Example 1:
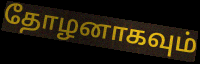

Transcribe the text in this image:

தோழனாகவும்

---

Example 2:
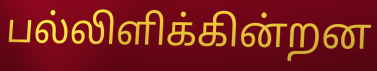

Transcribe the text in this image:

பல்லிளிக்கின்றன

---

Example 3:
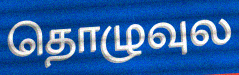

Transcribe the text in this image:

தொழுவுல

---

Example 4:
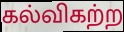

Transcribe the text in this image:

கல்விகற்ற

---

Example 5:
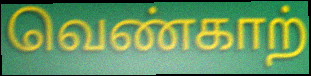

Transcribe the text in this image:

வெண்காற்